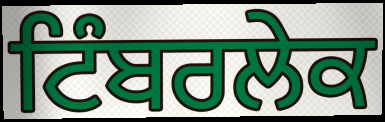
ਟਿੰਬਰਲੇਕ